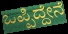
ಒಪ್ಪಿದ್ದೇನೆ